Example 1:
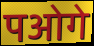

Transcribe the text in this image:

पओगे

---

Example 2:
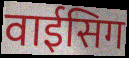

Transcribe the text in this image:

वाईसिग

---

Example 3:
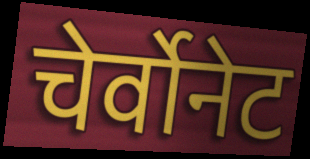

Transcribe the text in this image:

चेर्वोनेट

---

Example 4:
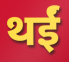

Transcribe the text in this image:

थईं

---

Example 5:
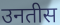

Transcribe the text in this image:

उनतीस